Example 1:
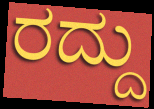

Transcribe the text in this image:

ರದ್ದು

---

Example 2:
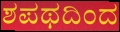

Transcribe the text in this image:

ಶಪಥದಿಂದ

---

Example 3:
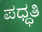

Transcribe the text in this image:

ಪಧ್ಧತಿ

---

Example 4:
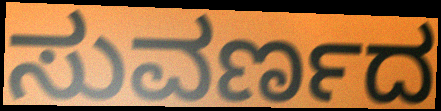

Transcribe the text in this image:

ಸುವರ್ಣದ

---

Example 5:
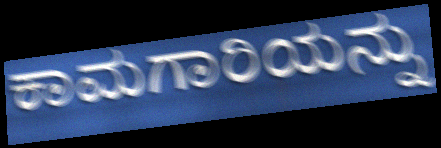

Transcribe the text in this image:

ಕಾಮಗಾರಿಯನ್ನು